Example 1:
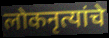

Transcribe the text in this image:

लोकनृत्यांचे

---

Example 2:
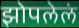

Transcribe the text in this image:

झोपलेलं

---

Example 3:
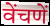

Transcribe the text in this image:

वेंचणें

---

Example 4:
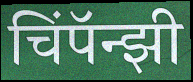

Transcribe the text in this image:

चिंपॅन्झी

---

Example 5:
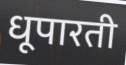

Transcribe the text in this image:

धूपारती